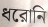
ধরোনি